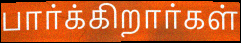
பார்க்கிறார்கள்